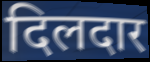
दिलदार